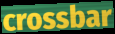
crossbar